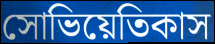
সোভিয়েতিকাস